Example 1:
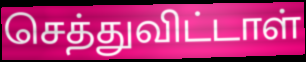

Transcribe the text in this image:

செத்துவிட்டாள்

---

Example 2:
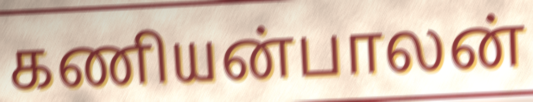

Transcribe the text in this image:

கணியன்பாலன்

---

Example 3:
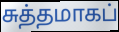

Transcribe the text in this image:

சுத்தமாகப்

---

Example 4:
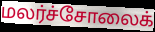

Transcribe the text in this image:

மலர்ச்சோலைக்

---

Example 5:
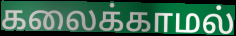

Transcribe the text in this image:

கலைக்காமல்